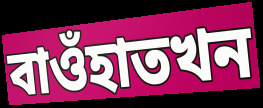
বাওঁহাতখন